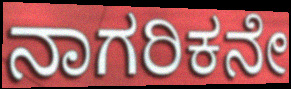
ನಾಗರಿಕನೇ